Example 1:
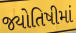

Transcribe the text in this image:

જ્યોતિષીમાં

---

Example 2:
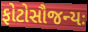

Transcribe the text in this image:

ફોટોસૌજન્યઃ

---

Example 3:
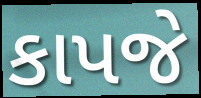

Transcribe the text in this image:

કાપજે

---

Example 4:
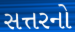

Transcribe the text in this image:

સત્તરનો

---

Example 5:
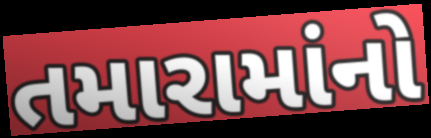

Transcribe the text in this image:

તમારામાંનો